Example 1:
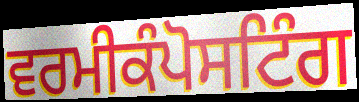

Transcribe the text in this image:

ਵਰਮੀਕੰਪੋਸਟਿੰਗ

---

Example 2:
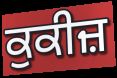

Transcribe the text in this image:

ਕੁਕੀਜ਼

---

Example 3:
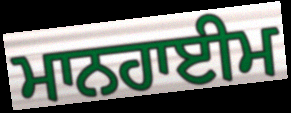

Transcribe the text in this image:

ਮਾਨਹਾਈਮ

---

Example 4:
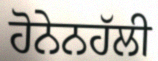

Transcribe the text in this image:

ਹੋਨੇਨਹੱਲੀ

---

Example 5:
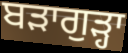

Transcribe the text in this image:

ਬੜਾਗੁੜ੍ਹਾ